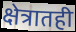
क्षेत्रातही